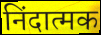
निंदात्मक